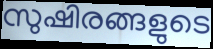
സുഷിരങ്ങളുടെ